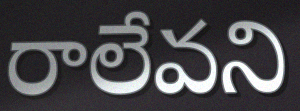
రాలేవని